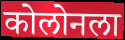
कोलोनला